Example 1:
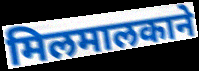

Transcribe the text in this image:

मिलमालकाने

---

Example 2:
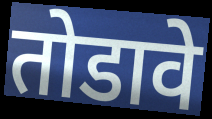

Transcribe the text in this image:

तोडावे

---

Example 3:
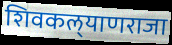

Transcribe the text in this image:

शिवकल्याणराजा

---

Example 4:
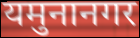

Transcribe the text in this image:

यमुनानगर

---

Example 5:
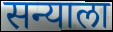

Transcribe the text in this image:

सन्याला